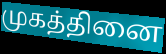
முகத்தினை